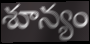
శూన్యం